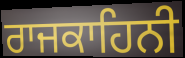
ਰਾਜਕਾਹਿਨੀ